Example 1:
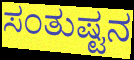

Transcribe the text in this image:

ಸಂತುಷ್ಟನ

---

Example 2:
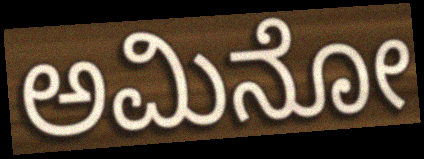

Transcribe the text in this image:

ಅಮಿನೋ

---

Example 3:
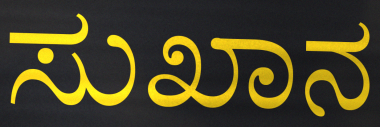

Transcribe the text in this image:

ಸುಖಾನ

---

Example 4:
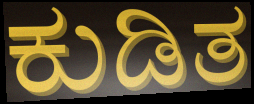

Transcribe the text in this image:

ಕುಡಿತ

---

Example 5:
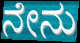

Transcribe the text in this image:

ನೇನು